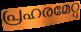
പ്രഹരമേറ്റു